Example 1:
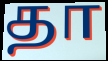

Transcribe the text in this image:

தா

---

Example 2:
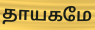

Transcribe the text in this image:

தாயகமே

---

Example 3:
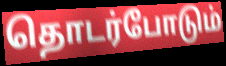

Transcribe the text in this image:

தொடர்போடும்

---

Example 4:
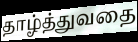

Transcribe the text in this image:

தாழ்த்துவதை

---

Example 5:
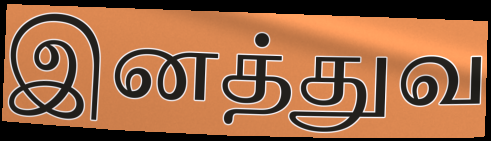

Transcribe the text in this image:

இனத்துவ